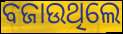
ବଜାଉଥିଲେ